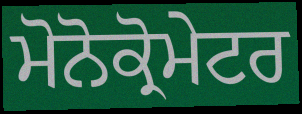
ਮੋਨੋਕ੍ਰੋਮੇਟਰ